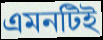
এমনটিই